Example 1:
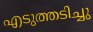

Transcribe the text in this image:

എടുത്തടിച്ചു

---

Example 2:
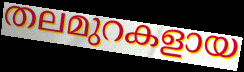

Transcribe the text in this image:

തലമുറകളായ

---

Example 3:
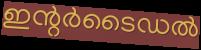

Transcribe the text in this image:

ഇന്റർടൈഡൽ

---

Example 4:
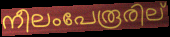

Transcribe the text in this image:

നീലംപേരൂരില്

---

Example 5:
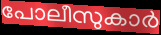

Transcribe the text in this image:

പോലീസുകാർ